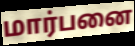
மார்பனை